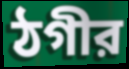
ঠগীর